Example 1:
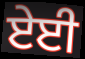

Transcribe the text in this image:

ਏਈ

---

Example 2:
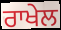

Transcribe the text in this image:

ਰਾਖੇਲ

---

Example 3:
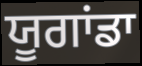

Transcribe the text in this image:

ਯੂਗਾਂਡਾ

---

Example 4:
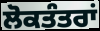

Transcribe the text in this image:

ਲੋਕਤੰਤਰਾਂ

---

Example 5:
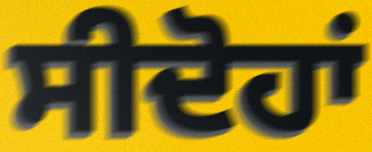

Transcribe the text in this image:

ਸੀਦੋਹਾਂ